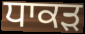
ਧਾਕੜ